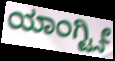
ಯಾಂಗ್ಟ್ಸೀ